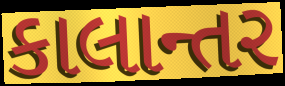
કાલાન્તર